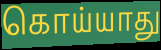
கொய்யாது